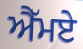
ਐੱਮਏ